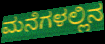
ಮನೆಗಳಲ್ಲಿನ